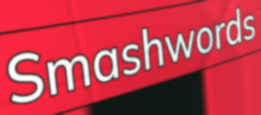
Smashwords